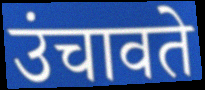
उंचावते